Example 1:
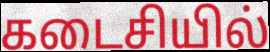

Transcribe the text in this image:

கடைசியில்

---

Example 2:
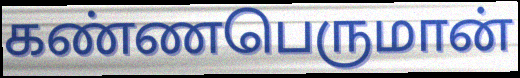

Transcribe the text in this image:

கண்ணபெருமான்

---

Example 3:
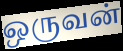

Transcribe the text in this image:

ஒருவன்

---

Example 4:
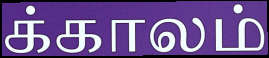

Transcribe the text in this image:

க்காலம்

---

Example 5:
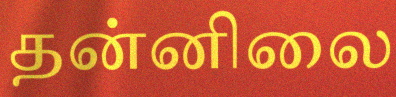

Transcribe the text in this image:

தன்னிலை